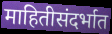
माहितीसंदर्भात